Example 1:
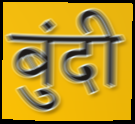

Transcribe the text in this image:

बुंदी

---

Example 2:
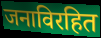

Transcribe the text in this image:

जनाविरहित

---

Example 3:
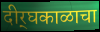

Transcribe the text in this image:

दीर्घकाळाचा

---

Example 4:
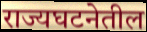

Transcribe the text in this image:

राज्यघटनेतील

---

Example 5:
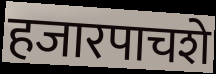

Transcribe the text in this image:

हजारपाचशे